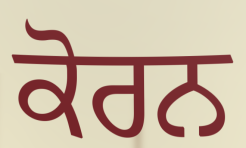
ਕੋਰਨ